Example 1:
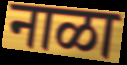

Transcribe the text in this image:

नाळा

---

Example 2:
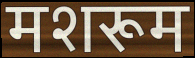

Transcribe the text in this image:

मशरूम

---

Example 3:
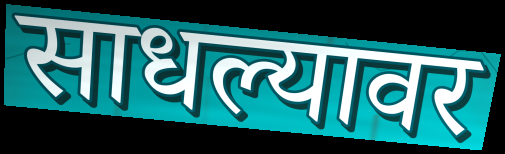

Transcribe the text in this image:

साधल्यावर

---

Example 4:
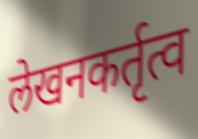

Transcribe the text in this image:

लेखनकर्तृत्व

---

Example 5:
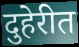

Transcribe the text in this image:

दुहेरीत